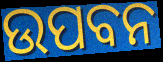
ଉପବନ